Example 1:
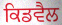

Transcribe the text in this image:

ਕਿਡਵੈਲ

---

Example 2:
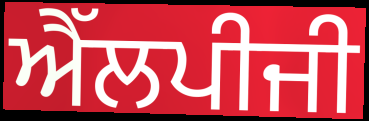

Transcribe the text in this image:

ਐੱਲਪੀਜੀ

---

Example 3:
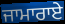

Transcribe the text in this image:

ਜਾਮਾਰਾਏ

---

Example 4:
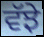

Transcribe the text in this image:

ਵੱਝੇ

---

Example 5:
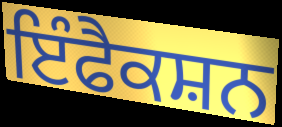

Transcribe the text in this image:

ਇੰਫੈਕਸ਼ਨ